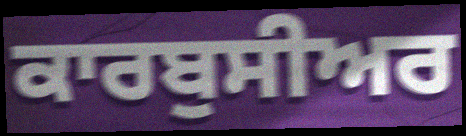
ਕਾਰਬੁਸੀਅਰ